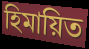
হিমায়িত